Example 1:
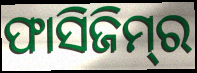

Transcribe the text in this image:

ଫାସିଜିମ୍‌ର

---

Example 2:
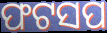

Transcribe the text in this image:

ଫଟସପ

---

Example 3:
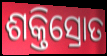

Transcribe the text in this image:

ଶକ୍ତିସ୍ରୋତ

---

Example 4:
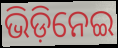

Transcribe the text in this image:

ଭିଡ଼ିନେଇ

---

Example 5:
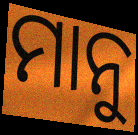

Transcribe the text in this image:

ମାନୁ